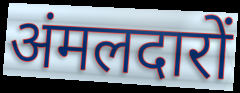
अंमलदारों